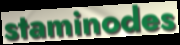
staminodes